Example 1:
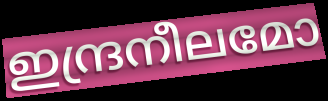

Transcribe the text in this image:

ഇന്ദ്രനീലമോ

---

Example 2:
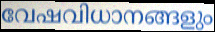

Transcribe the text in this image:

വേഷവിധാനങ്ങളും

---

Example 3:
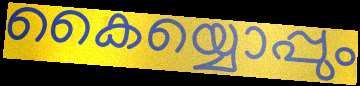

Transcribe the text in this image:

കൈയ്യൊപ്പും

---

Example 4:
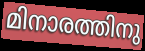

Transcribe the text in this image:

മിനാരത്തിനു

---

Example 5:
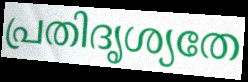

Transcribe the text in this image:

പ്രതിദൃശ്യതേ